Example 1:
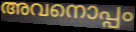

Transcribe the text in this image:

അവനൊപ്പം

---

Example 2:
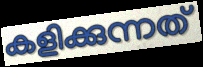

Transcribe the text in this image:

കളിക്കുന്നത്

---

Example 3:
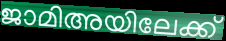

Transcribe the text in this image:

ജാമിഅയിലേക്ക്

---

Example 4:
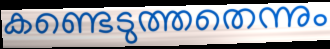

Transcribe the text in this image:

കണ്ടെടുത്തതെന്നും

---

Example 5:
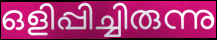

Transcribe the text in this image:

ഒളിപ്പിച്ചിരുന്നു